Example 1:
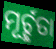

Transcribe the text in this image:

ମୂର୍ଚ୍ଛତା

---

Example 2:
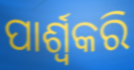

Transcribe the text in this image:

ପାର୍ଶ୍ଵକରି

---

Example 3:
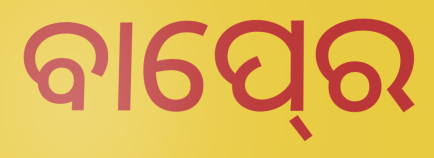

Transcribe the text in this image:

ବାପ୍‍ରେ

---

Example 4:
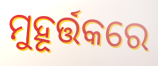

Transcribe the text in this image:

ମୁହୂର୍ତ୍ତକରେ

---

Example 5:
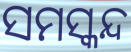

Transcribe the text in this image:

ସମସ୍କନ୍ଦ